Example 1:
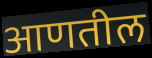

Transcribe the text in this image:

आणतील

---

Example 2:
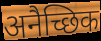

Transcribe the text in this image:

अनैच्छिक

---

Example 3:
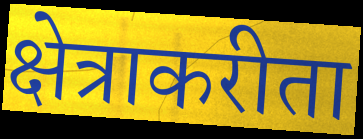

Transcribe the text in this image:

क्षेत्राकरीता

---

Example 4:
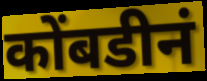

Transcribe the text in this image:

कोंबडीनं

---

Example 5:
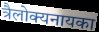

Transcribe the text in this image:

त्रैलोक्यनायका